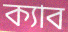
ক্যাব